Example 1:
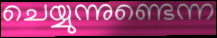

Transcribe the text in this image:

ചെയ്യുന്നുണ്ടെന്ന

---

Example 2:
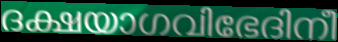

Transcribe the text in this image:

ദക്ഷയാഗവിഭേദിനീ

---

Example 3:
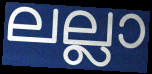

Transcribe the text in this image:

ലല്ലാ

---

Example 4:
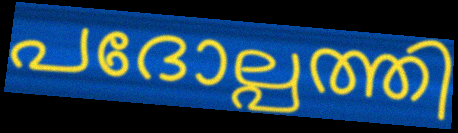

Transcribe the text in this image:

പദോല്പത്തി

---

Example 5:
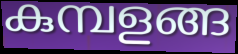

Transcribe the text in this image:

കുമ്പളങ്ങ